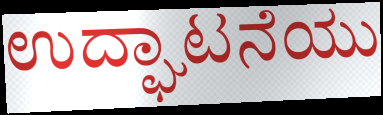
ಉದ್ಘಾಟನೆಯು